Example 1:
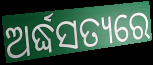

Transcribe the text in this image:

ଅର୍ଦ୍ଧସତ୍ୟରେ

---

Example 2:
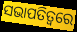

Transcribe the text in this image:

ସଭାପତିତ୍ଵରେ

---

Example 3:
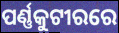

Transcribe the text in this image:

ପର୍ଣ୍ଣକୁଟୀରରେ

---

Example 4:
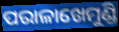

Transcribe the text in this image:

ପରାଳାଖେମୁଣ୍ଡି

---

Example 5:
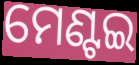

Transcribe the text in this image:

ମେଣ୍ଟଇ